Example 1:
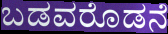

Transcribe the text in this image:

ಬಡವರೊಡನೆ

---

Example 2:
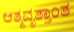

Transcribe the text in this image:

ಆತ್ಮವೃತ್ತಾಂತ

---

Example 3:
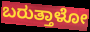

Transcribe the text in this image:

ಬರುತ್ತಾಳೋ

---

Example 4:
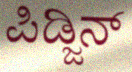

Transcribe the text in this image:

ಪಿಡ್ಜಿನ್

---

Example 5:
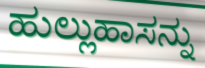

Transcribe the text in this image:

ಹುಲ್ಲುಹಾಸನ್ನು